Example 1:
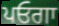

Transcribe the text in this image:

ਪਓਗਾ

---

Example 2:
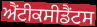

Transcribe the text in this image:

ਐਂਟੀਕਸੀਡੈਂਟਸ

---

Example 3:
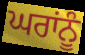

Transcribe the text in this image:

ਘਰਾਂਨੂੰ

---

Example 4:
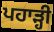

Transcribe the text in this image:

ਪਹਾੜ੍ਹੀ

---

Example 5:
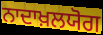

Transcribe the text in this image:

ਨਾਦਾਖ਼ਲਯੋਗ